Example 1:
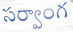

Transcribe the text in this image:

సర్వాంగ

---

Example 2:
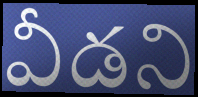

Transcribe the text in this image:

వీడని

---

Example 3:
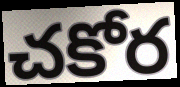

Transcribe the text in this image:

చకోర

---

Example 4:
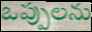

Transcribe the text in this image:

ఒప్పులను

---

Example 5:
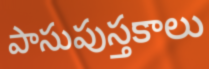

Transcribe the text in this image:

పాసుపుస్తకాలు